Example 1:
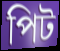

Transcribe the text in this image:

পিট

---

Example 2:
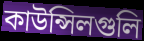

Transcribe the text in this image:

কাউন্সিলগুলি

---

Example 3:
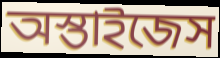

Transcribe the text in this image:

অস্তাইজেস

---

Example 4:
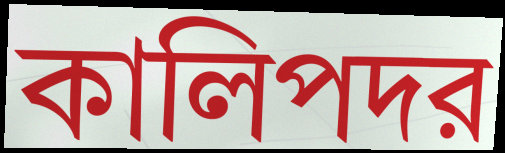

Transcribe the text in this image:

কালিপদর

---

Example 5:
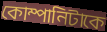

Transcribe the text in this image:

কোম্পানিটাকে